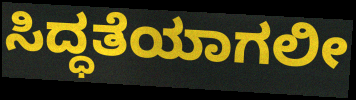
ಸಿದ್ಧತೆಯಾಗಲೀ